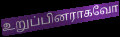
உறுப்பினராகவோ